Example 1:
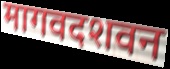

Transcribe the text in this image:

मागवदशवन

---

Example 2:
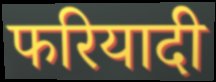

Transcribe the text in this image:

फरियादी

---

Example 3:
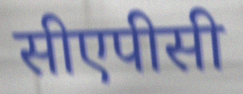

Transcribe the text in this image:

सीएपीसी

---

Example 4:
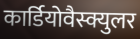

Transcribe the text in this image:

कार्डियोवैस्क्युलर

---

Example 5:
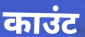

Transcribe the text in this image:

काउंट